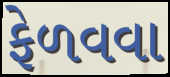
ફેળવવા